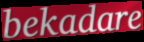
bekadare